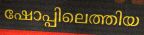
ഷോപ്പിലെത്തിയ